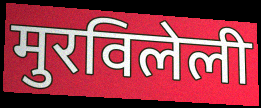
मुरविलेली